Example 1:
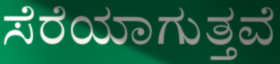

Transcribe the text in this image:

ಸೆರೆಯಾಗುತ್ತವೆ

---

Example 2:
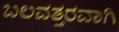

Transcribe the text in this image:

ಬಲವತ್ತರವಾಗಿ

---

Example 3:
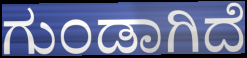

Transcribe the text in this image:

ಗುಂಡಾಗಿದೆ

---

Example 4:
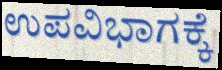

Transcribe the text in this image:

ಉಪವಿಭಾಗಕ್ಕೆ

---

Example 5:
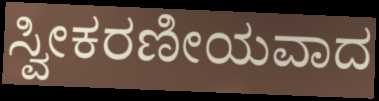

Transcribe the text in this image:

ಸ್ವೀಕರಣೀಯವಾದ